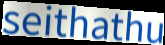
seithathu